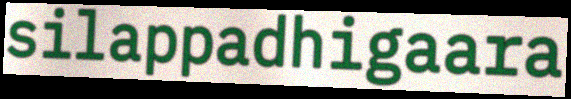
silappadhigaara